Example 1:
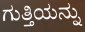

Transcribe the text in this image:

ಗುತ್ತಿಯನ್ನು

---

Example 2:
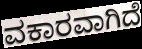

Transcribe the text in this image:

ವಕಾರವಾಗಿದೆ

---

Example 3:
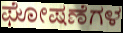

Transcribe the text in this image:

ಘೋಷಣೆಗಳ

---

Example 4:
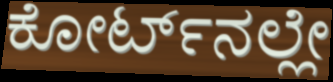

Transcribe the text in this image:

ಕೋರ್ಟ್‌ನಲ್ಲೇ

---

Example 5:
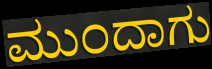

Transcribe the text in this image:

ಮುಂದಾಗು